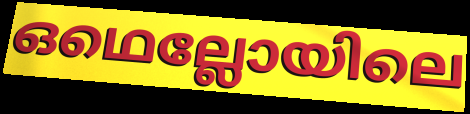
ഒഥെല്ലോയിലെ